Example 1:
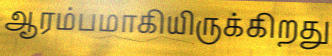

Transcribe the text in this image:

ஆரம்பமாகியிருக்கிறது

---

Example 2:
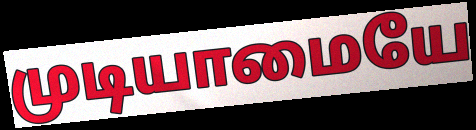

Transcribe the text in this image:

முடியாமையே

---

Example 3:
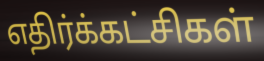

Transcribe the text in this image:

எதிர்க்கட்சிகள்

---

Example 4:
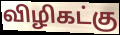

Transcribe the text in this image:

விழிகட்கு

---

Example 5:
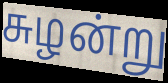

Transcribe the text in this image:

சுழன்று